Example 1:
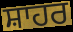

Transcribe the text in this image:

ਸ਼ਾਹਰ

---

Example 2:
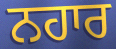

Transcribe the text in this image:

ਨਹਾਰ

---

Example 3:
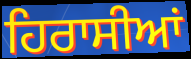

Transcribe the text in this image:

ਹਿਰਾਸੀਆਂ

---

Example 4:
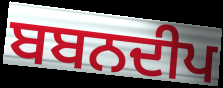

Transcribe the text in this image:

ਬਬਨਦੀਪ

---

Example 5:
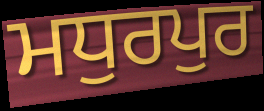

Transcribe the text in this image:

ਮਧੁਰਪੁਰ